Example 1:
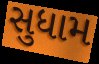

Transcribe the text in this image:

સુધામ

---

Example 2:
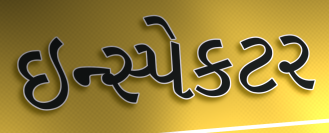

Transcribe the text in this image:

ઇન્સ્પેકટર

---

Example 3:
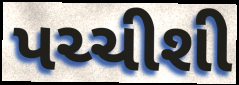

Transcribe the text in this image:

પચ્ચીશી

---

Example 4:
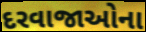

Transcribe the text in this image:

દરવાજાઓના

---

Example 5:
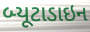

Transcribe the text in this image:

બ્યૂટાડાઇન